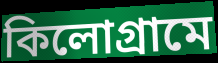
কিলোগ্রামে